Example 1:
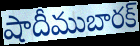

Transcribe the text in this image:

షాదీముబారక్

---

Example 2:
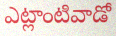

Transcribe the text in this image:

ఎట్లాంటివాడో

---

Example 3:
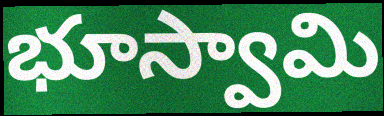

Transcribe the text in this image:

భూస్వామి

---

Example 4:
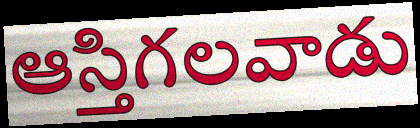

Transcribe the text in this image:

ఆస్తిగలవాడు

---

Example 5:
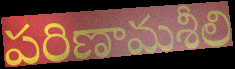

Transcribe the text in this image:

పరిణామశీలి